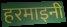
हरमाइनी